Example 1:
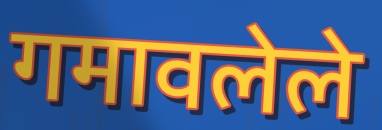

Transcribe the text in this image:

गमावलेले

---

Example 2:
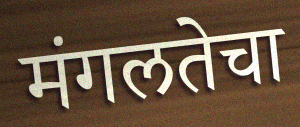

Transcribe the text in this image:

मंगलतेचा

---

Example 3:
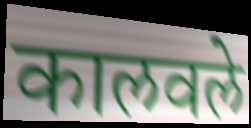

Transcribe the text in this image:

कालवले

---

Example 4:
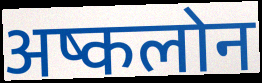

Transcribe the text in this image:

अष्कलोन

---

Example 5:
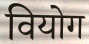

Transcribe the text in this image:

वियोग